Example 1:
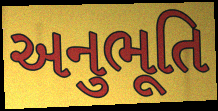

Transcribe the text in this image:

અનુભૂતિ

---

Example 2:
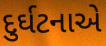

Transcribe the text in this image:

દુર્ઘટનાએ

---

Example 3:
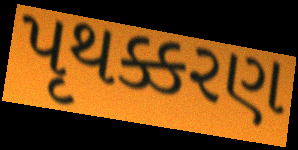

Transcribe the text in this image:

પૃથક્કરણ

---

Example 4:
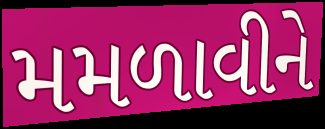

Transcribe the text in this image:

મમળાવીને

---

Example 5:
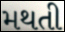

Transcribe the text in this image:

મથતી